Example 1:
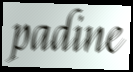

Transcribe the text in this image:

padine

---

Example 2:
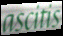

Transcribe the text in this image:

ascitis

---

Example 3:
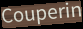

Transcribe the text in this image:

Couperin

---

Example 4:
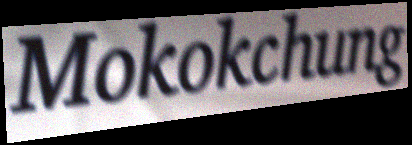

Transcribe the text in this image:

Mokokchung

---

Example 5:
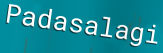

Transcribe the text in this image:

Padasalagi